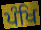
ਪੰਖਿ